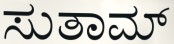
ಸುತಾಮ್